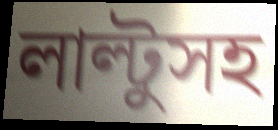
লাল্টুসহ